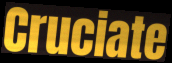
Cruciate